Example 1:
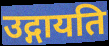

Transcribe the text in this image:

उद्गायति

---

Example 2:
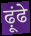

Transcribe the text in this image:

ढ़ूंढे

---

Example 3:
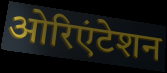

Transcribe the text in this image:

ओरिएंटेशन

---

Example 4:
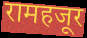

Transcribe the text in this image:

रामहजूर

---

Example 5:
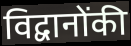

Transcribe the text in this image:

विद्वानोंकी